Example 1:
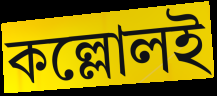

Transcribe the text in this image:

কল্লোলই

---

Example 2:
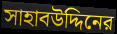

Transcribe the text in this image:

সাহাবউদ্দিনের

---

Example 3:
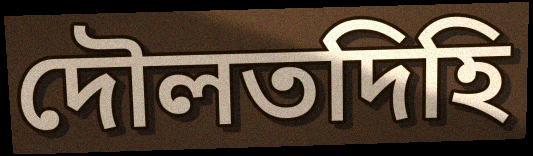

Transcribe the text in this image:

দৌলতদিহি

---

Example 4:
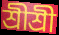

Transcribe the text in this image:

শ্রীশ্রী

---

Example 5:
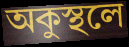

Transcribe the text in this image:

অকুস্থলে